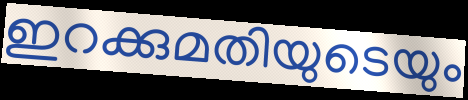
ഇറക്കുമതിയുടെയും